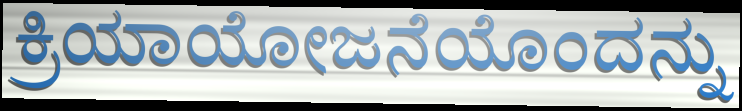
ಕ್ರಿಯಾಯೋಜನೆಯೊಂದನ್ನು